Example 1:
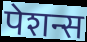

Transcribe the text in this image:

पेशन्स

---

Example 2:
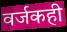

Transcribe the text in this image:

वर्जकही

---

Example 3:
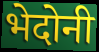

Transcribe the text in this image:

भेदोनी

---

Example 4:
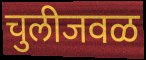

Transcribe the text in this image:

चुलीजवळ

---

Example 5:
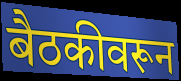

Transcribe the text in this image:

बैठकीवरून